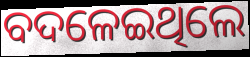
ବଦଳେଇଥିଲେ